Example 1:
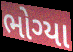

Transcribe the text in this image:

ભોગ્યા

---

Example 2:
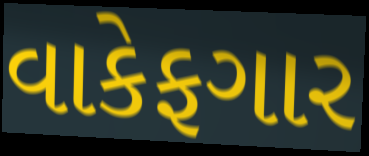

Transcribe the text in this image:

વાકેફગાર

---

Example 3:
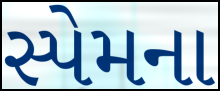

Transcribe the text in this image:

સ્પેમના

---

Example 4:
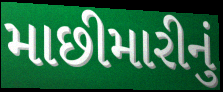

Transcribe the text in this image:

માછીમારીનું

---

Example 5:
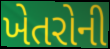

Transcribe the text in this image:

ખેતરોની